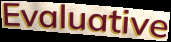
Evaluative